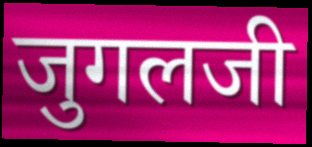
जुगलजी